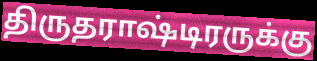
திருதராஷ்டிரருக்கு